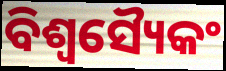
ବିଶ୍ୱସ୍ୟୈକଂ